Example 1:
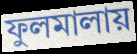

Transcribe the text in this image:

ফুলমালায়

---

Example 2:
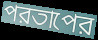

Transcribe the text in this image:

পরতাপের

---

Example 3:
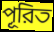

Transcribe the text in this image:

পূরিত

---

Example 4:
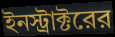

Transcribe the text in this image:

ইনস্ট্রাক্টরের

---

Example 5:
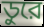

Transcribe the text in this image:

ডুরে